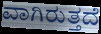
ವಾಗಿರುತ್ತದೆ